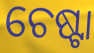
ଚେଷ୍ଟା